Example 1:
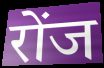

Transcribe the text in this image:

रोंज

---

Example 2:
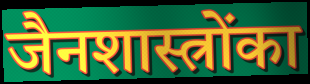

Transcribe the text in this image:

जैनशास्त्रोंका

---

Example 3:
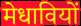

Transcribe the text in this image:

मेधावियों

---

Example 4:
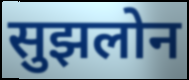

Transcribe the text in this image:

सुझलोन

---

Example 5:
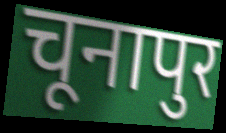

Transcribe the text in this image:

चूनापुर